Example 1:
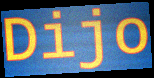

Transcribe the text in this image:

Dijo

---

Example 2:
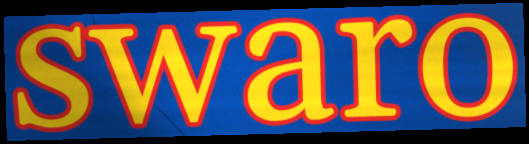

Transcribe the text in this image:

swaro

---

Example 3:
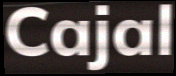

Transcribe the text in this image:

Cajal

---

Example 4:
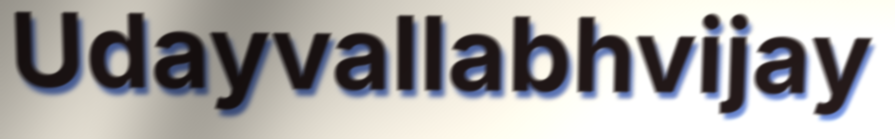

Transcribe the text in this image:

Udayvallabhvijay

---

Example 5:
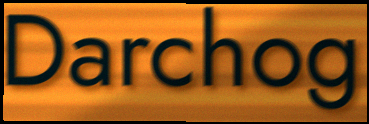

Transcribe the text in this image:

Darchog